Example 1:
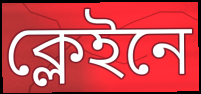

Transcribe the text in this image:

ক্লেইনে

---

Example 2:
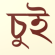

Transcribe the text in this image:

চুই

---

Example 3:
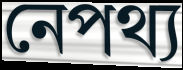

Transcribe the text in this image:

নেপথ্য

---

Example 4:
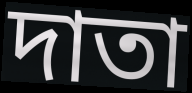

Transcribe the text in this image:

দাতা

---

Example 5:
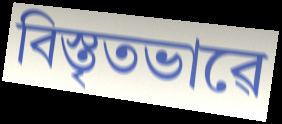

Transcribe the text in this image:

বিস্তৃতভাৱে